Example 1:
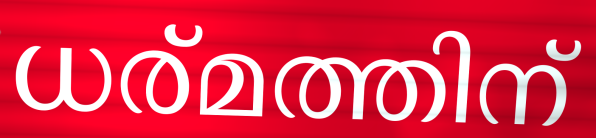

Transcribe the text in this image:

ധര്മത്തിന്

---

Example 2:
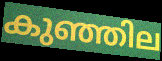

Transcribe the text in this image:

കുഞ്ഞില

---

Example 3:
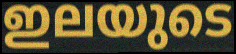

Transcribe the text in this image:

ഇലയുടെ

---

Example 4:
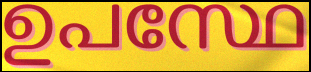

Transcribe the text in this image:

ഉപസ്ഥേ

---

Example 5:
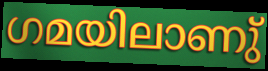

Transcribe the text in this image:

ഗമയിലാണു്